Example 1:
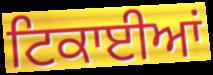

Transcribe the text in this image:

ਟਿਕਾਈਆਂ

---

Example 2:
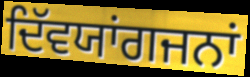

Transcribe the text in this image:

ਦਿੱਵਯਾਂਗਜਨਾਂ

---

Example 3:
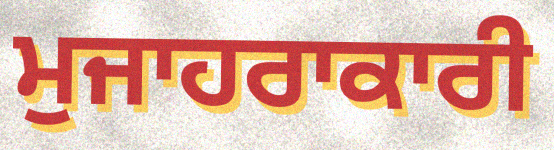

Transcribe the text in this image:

ਮੁਜਾਹਰਾਕਾਰੀ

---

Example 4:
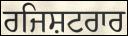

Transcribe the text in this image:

ਰਜਿਸ਼ਟਰਾਰ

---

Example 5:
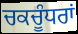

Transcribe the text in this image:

ਚਕਚੂੰਧਰਾਂ